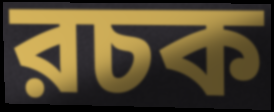
রচক